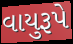
વાયુરૂપે